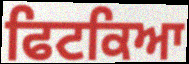
ਫਿਟਕਿਆ